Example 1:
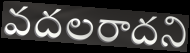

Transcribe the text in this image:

వదలరాదని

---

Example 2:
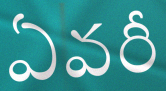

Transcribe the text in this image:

ఏవరీ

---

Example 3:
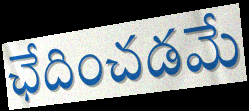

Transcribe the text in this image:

ఛేదించడమే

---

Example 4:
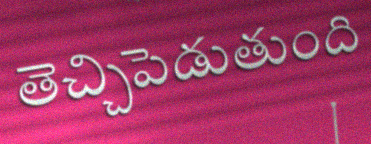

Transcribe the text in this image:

తెచ్చిపెడుతుంది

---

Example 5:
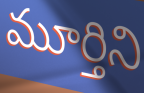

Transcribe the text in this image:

మూర్తిని